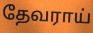
தேவராய்